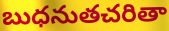
బుధనుతచరితా